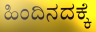
ಹಿಂದಿನದಕ್ಕೆ